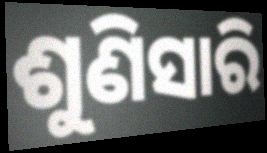
ଶୁଣିସାରି